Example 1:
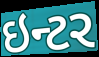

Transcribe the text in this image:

ઇન્ટર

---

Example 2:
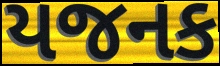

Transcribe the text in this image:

યજનક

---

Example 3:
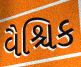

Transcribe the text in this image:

વૈશ્ચિક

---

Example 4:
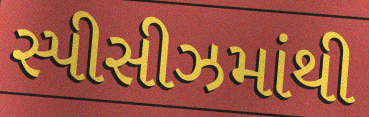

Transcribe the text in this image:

સ્પીસીઝમાંથી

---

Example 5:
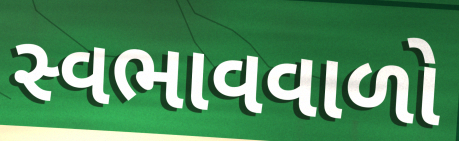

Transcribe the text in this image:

સ્વભાવવાળો